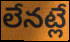
లేనట్లే